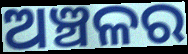
ଅଞ୍ଚଳର